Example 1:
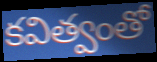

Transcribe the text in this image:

కవిత్వంతో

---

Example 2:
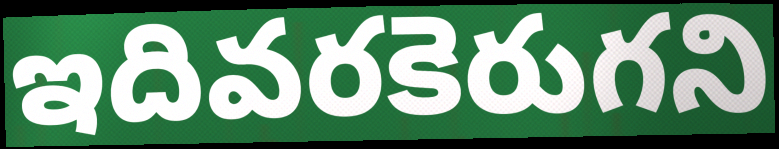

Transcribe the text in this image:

ఇదివరకెరుగని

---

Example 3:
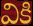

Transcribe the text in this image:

వికి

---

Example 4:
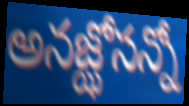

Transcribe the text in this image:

అనజ్ఝోసన్నో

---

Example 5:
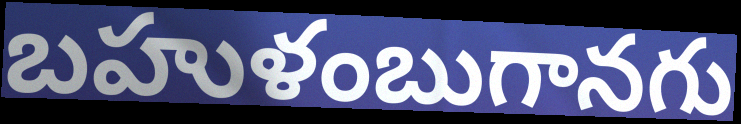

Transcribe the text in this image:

బహుళంబుగానగు